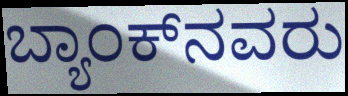
ಬ್ಯಾಂಕ್‌ನವರು